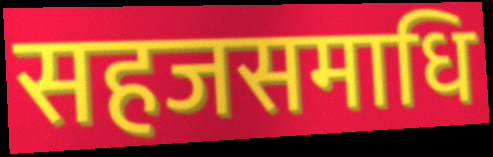
सहजसमाधि